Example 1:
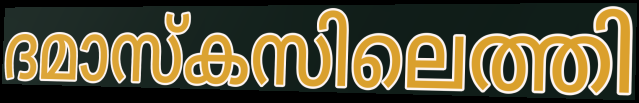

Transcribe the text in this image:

ദമാസ്കസിലെത്തി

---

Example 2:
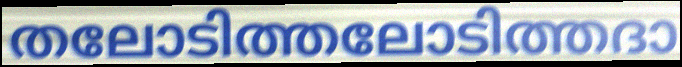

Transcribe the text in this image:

തലോടിത്തലോടിത്തദാ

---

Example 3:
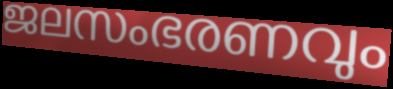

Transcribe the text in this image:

ജലസംഭരണവും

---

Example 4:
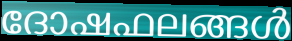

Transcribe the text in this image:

ദോഷഫലങ്ങൾ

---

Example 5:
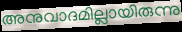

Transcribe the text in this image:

അനുവാദമില്ലായിരുന്നു